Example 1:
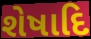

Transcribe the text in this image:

શેષાદિ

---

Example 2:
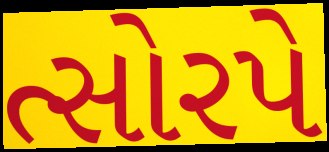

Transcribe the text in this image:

ત્સોરપે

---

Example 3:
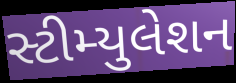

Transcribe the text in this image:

સ્ટીમ્યુલેશન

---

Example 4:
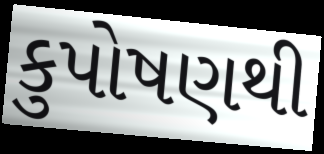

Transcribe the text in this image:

કુપોષણથી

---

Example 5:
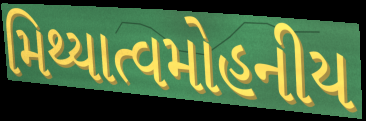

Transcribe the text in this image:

મિથ્યાત્વમોહનીય